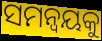
ସମନ୍ବୟକୁ